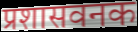
प्रशासवनक